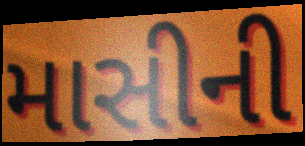
માસીની